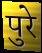
पुरे